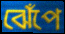
ঝেঁপে